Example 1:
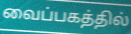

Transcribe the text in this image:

வைப்பகத்தில்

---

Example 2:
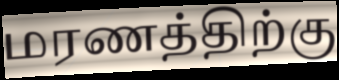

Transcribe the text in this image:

மரணத்திற்கு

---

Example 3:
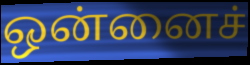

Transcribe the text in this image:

ஒன்னைச்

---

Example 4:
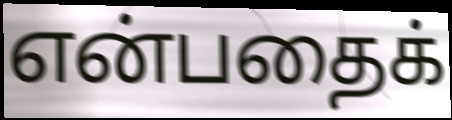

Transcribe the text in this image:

என்பதைக்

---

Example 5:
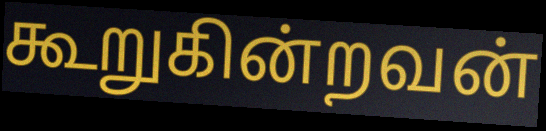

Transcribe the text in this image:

கூறுகின்றவன்